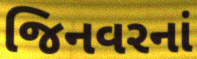
જિનવરનાં